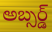
అబ్సర్డ్